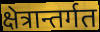
क्षेत्रान्‍तर्गत